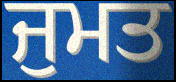
ਜੁਮਤ